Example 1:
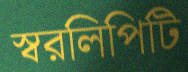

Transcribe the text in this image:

স্বরলিপিটি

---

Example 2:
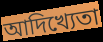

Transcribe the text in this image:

আদিখ্যেতা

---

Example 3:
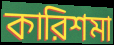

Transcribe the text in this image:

কারিশমা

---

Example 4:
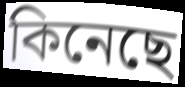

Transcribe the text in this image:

কিনেছে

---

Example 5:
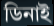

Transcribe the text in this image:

ডিনাই